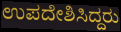
ಉಪದೇಶಿಸಿದ್ದರು